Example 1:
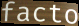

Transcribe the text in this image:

facto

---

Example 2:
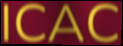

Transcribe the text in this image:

ICAC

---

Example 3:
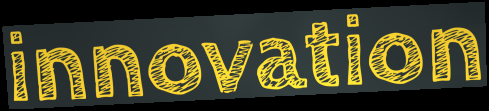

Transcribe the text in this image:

innovation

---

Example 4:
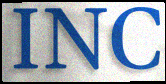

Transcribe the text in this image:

INC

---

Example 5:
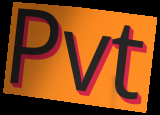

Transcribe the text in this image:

Pvt